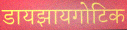
डायझायगोटिक